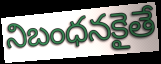
నిబంధనకైతే